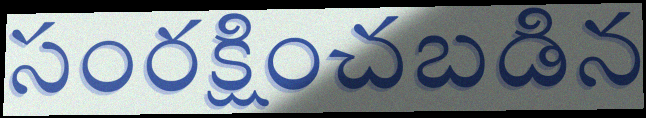
సంరక్షించబడిన